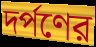
দর্পণের